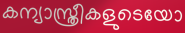
കന്യാസ്ത്രീകളുടെയോ